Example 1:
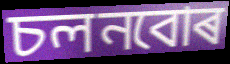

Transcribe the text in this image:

চলনবোৰ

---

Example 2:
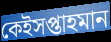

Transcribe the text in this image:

কেইসপ্তাহমান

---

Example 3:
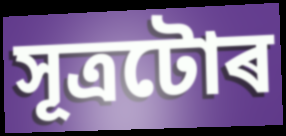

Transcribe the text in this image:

সূত্ৰটোৰ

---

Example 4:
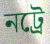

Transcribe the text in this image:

নট্ৰে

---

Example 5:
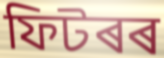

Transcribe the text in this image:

ফিটৰৰ